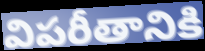
విపరీతానికి